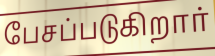
பேசப்படுகிறார்